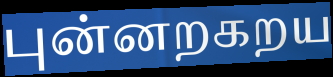
புன்னறகறய